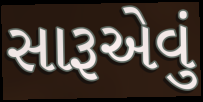
સારૂએવું